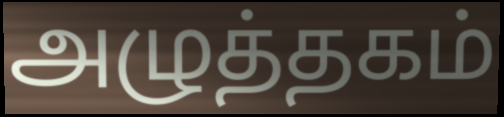
அழுத்தகம்